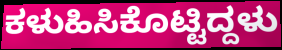
ಕಳುಹಿಸಿಕೊಟ್ಟಿದ್ದಳು